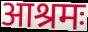
आश्रमः